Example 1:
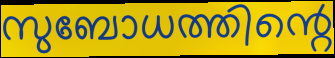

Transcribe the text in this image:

സുബോധത്തിന്റെ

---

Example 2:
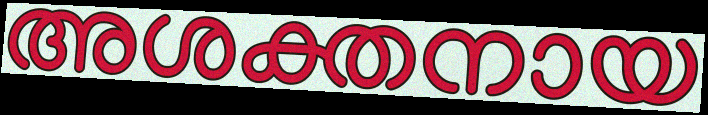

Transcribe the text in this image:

അശക്തനായ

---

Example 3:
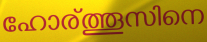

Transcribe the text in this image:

ഹോര്ത്തൂസിനെ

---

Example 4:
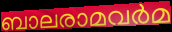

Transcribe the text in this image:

ബാലരാമവർമ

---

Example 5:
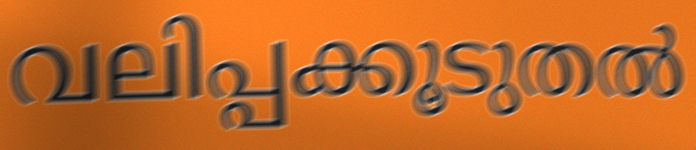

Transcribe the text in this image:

വലിപ്പക്കൂടുതൽ